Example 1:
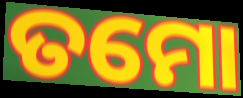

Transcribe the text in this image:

ତମୋ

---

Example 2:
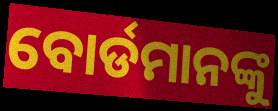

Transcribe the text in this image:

ବୋର୍ଡମାନଙ୍କୁ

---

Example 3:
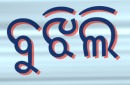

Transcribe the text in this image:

ବୁଝିଲି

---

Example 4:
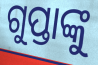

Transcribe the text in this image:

ଗୁପ୍ତାଙ୍କୁ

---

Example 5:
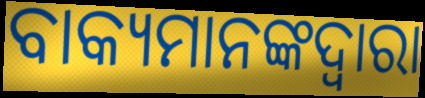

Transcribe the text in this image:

ବାକ୍ୟମାନଙ୍କଦ୍ୱାରା